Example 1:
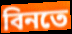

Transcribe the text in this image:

বিনতে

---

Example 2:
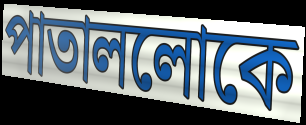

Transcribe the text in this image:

পাতাললোকে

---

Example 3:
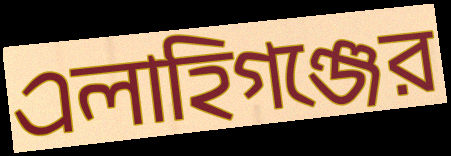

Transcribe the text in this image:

এলাহিগঞ্জের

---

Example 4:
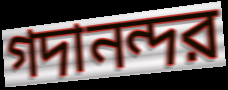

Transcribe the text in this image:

গদানন্দর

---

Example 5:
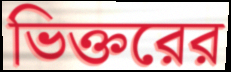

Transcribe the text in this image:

ভিক্তরের